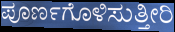
ಪೂರ್ಣಗೊಳಿಸುತ್ತೀರಿ